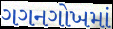
ગગનગોખમાં